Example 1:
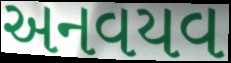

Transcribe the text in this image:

અનવયવ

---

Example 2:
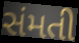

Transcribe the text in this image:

સંમતી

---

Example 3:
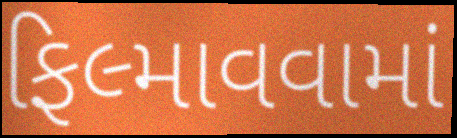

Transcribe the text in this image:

ફિલ્માવવામાં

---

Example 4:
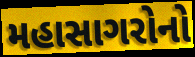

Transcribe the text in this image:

મહાસાગરોનો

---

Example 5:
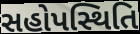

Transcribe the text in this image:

સહોપસ્થિતિ